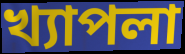
খ্যাপলা